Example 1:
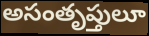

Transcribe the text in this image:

అసంతృప్తులూ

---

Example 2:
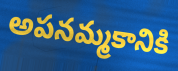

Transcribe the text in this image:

అపనమ్మకానికి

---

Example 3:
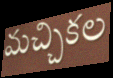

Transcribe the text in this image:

మచ్చికల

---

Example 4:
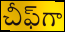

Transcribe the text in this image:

చీఫ్‌గా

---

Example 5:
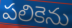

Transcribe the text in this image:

పలికెను